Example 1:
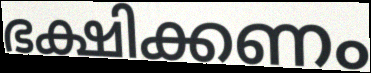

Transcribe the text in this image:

ഭക്ഷിക്കണം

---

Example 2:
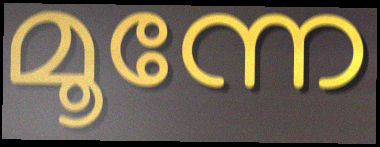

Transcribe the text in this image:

മൂന്നേ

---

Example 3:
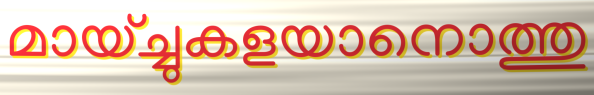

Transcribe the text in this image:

മായ്ച്ചുകളയാനൊത്തു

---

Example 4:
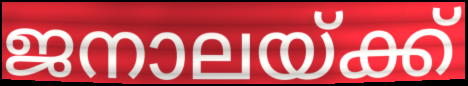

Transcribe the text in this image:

ജനാലയ്ക്ക്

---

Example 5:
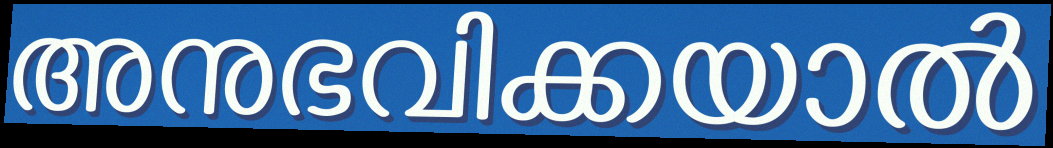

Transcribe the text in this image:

അനുഭവിക്കയാൽ